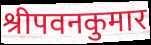
श्रीपवनकुमार